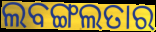
ଲବଙ୍ଗଲତାର